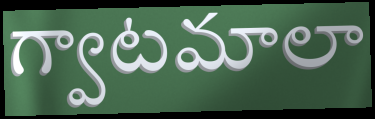
గ్వాటమాలా